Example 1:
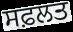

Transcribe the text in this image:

ਸਫ਼ਲਤ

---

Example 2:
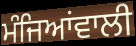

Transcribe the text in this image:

ਮੰਜਿਆਂਵਾਲੀ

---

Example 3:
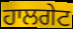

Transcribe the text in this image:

ਹਾਲਗੇਟ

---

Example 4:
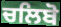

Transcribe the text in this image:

ਚਲਿਬੋ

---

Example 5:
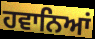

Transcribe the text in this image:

ਹਵਾਨਿਆਂ